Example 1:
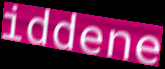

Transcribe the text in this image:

iddene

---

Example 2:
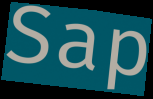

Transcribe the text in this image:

Sap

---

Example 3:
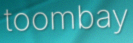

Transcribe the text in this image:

toombay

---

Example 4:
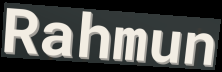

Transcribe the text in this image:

Rahmun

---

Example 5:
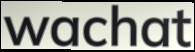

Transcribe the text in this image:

wachat